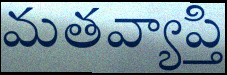
మతవ్యాప్తి